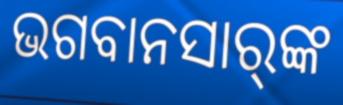
ଭଗବାନସାର୍‌ଙ୍କ